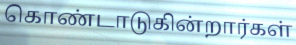
கொண்டாடுகின்றார்கள்